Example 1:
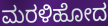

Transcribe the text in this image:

ಮರಳಿಹೋದ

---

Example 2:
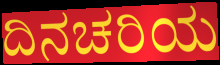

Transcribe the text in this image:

ದಿನಚರಿಯ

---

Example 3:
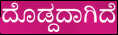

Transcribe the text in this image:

ದೊಡ್ದದಾಗಿದೆ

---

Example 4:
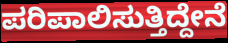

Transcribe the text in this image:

ಪರಿಪಾಲಿಸುತ್ತಿದ್ದೇನೆ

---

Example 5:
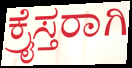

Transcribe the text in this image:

ಕ್ರೈಸ್ತರಾಗಿ